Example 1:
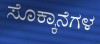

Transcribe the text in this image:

ಸೊಕ್ಕಾನೆಗಳ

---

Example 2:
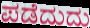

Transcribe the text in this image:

ಪಡೆದುದು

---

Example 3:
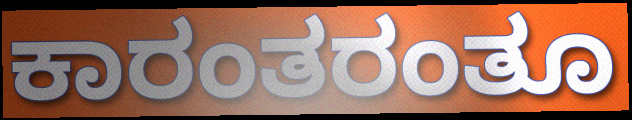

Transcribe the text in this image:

ಕಾರಂತರಂತೂ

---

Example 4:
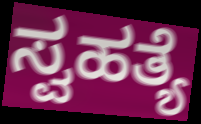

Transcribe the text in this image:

ಸ್ವಹತ್ಯೆ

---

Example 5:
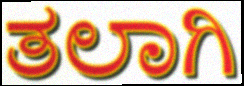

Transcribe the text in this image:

ತಲಾಗಿ